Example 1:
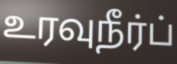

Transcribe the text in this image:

உரவுநீர்ப்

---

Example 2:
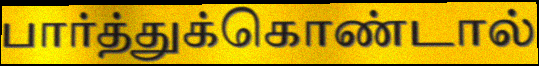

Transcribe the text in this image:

பார்த்துக்கொண்டால்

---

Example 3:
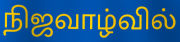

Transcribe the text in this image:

நிஜவாழ்வில்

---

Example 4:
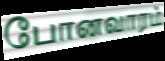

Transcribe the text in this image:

போனவாரம்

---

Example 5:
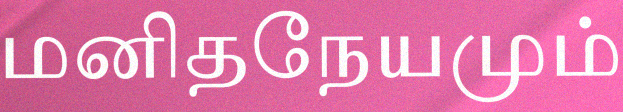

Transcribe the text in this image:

மனிதநேயமும்